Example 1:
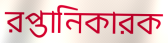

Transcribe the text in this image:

রপ্তানিকারক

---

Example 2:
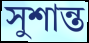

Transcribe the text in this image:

সুশান্ত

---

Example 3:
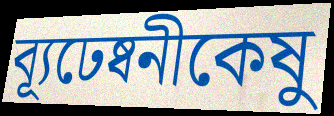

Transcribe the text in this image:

ব্যূঢেষ্বনীকেষু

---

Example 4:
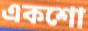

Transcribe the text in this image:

একশো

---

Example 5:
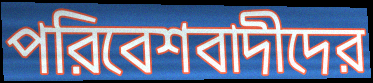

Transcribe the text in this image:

পরিবেশবাদীদের